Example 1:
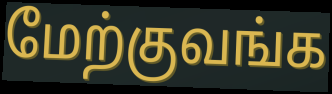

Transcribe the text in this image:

மேற்குவங்க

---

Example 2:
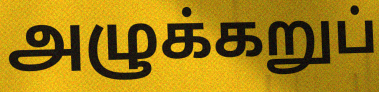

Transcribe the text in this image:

அழுக்கறுப்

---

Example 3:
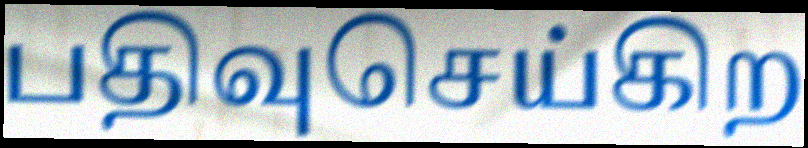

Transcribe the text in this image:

பதிவுசெய்கிற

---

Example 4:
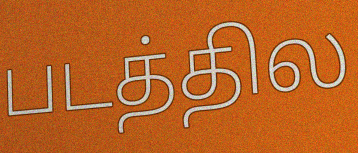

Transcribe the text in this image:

படத்தில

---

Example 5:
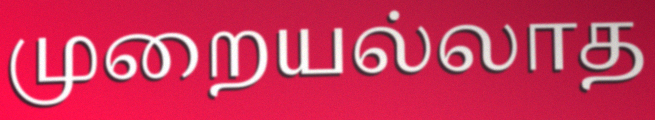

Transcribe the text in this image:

முறையல்லாத